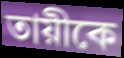
তায়ীকে